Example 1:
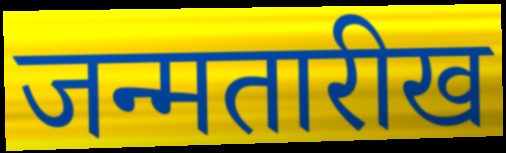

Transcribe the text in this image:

जन्मतारीख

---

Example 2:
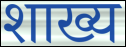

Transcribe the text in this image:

शाख्य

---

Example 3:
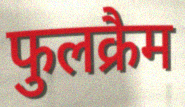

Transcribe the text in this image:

फुलक्रैम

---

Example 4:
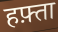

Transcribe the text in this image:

हफ़्ता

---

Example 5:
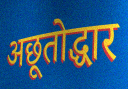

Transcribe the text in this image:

अछूतोद्धार